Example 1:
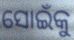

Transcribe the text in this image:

ସୋଇଁକୁ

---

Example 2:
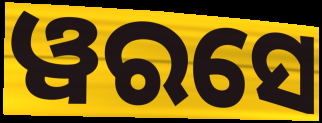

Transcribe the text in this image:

ୱରସେ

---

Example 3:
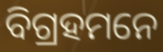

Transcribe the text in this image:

ବିଗ୍ରହମନେ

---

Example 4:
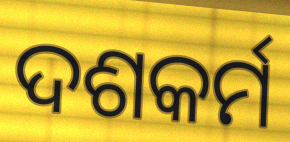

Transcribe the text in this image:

ଦଶକର୍ମ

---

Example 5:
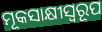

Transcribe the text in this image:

ମୂକସାକ୍ଷୀସ୍ୱରୂପ